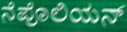
ನೆಪೊಲಿಯನ್